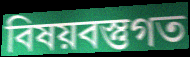
বিষয়বস্তুগত